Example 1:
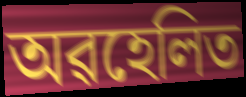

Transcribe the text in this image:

অৱহেলিত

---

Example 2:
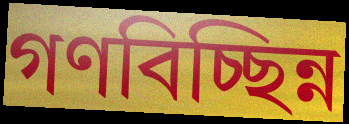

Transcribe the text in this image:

গণবিচ্ছিন্ন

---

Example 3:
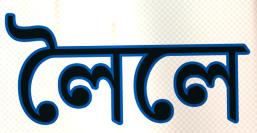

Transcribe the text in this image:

লৈলে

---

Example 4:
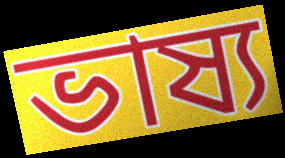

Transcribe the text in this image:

ভাষ্য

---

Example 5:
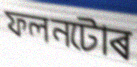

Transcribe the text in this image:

ফলনটোৰ